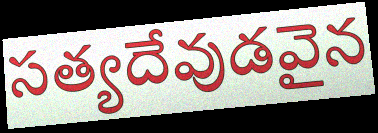
సత్యదేవుడవైన